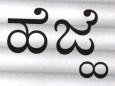
ಹೆಜ್ಹೆ